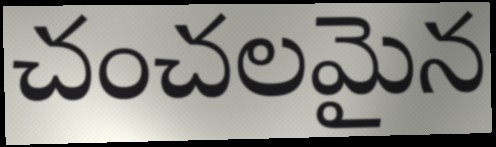
చంచలమైన